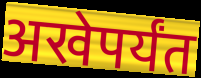
अखेपर्यंत